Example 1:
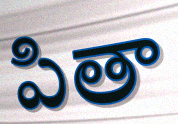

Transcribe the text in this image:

పితా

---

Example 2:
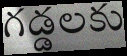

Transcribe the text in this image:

గడ్డలకు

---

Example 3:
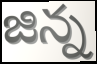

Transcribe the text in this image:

జిన్న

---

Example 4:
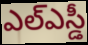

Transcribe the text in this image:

ఎల్ఎస్డీ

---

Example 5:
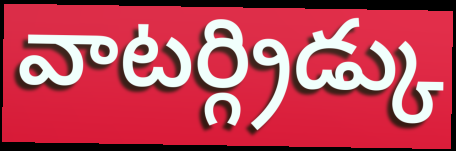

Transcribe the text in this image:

వాటర్గ్రిడ్కు